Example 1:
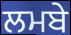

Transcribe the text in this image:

ਲਮਬੇ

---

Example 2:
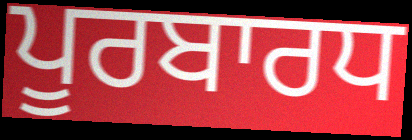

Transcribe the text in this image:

ਪੂਰਬਾਰਧ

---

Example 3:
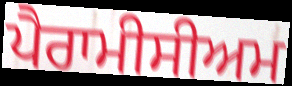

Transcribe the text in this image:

ਪੈਰਾਮੀਸੀਅਮ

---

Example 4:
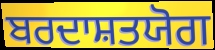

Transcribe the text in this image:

ਬਰਦਾਸ਼ਤਯੋਗ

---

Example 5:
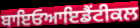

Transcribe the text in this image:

ਬਾਇਓਆਇਡੈਂਟੀਕਲ